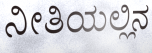
ನೀತಿಯಲ್ಲಿನ